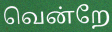
வென்றே